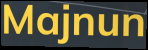
Majnun